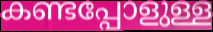
കണ്ടപ്പോളുള്ള